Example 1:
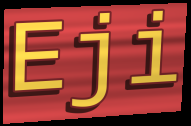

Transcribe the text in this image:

Eji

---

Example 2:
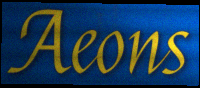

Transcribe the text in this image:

Aeons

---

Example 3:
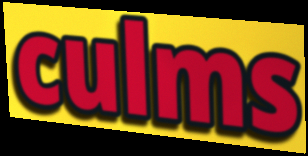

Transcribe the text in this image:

culms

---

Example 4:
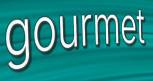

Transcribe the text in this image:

gourmet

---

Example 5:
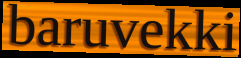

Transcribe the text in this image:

baruvekki